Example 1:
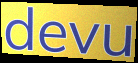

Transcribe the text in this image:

devu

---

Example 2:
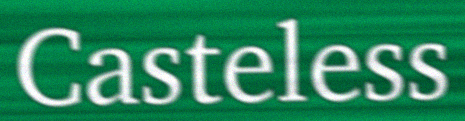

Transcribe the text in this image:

Casteless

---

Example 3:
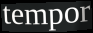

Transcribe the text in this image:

tempor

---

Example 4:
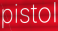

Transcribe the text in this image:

pistol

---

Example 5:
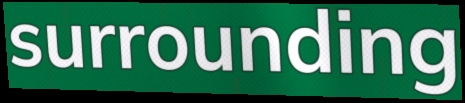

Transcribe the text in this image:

surrounding